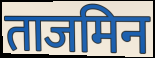
ताजमिन